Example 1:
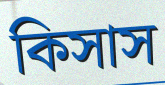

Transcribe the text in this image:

কিসাস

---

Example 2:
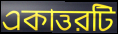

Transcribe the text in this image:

একাত্তরটি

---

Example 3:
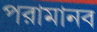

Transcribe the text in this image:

পরামানব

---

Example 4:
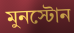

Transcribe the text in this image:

মুনস্টোন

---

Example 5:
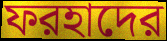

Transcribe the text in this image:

ফরহাদের